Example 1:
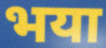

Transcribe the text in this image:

भया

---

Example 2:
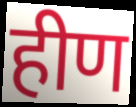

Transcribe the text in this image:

हीण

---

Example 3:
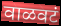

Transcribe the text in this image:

वाळवटं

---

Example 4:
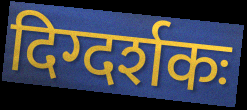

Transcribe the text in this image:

दिग्दर्शकः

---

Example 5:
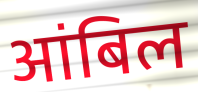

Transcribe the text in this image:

आंबिल